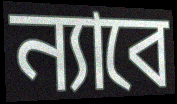
ন্যাবে